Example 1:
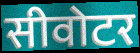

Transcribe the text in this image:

सीवोटर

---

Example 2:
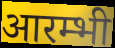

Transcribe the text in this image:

आरम्भी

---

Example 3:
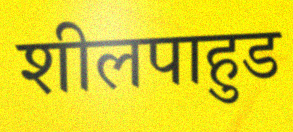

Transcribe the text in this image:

शीलपाहुड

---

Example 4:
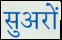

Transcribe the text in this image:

सुअरों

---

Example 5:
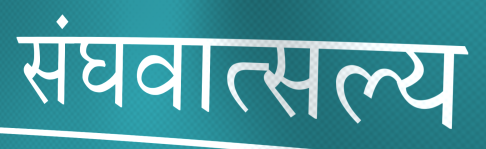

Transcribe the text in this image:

संघवात्सल्य